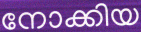
നോക്കിയ